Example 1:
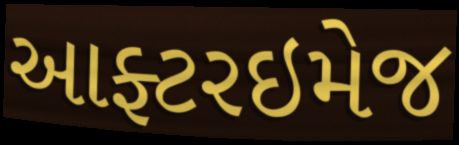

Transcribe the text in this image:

આફ્ટરઇમેજ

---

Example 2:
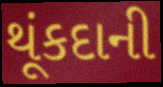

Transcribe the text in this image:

થૂંકદાની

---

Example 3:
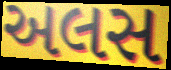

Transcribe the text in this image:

અલસ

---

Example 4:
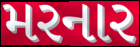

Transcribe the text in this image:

મરનાર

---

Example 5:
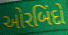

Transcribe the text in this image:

ઓરબિંદો